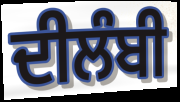
ਦੀਲੰਬੀ